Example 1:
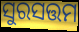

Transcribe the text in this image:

ସୁରସତ୍ତମ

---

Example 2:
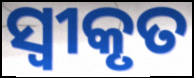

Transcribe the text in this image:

ସ୍ଵୀକୃତ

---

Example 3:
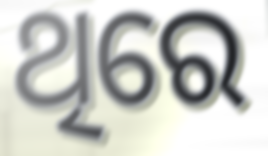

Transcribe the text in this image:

ଥିରେ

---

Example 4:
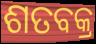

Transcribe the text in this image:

ଶତବକ୍ର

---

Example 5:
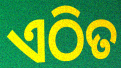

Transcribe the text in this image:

ଏଠିତ